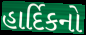
હાર્દિકનો